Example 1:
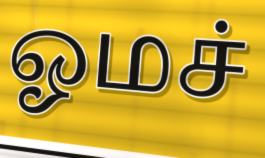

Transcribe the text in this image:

ஓமச்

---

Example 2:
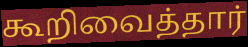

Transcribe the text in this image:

கூறிவைத்தார்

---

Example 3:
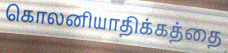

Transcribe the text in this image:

கொலனியாதிக்கத்தை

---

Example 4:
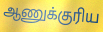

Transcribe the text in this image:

ஆணுக்குரிய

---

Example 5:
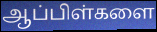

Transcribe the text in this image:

ஆப்பிள்களை